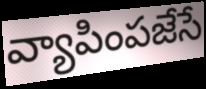
వ్యాపింపజేసే